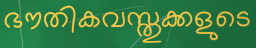
ഭൗതികവസ്തുക്കളുടെ